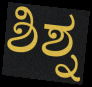
ಶಿಶ್ನ